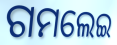
ଗମଲେଇ